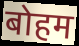
बोहम